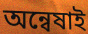
অন্বেষাই